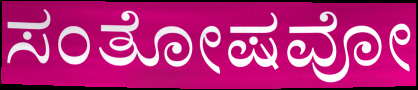
ಸಂತೋಷವೋ